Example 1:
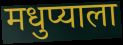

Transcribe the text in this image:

मधुप्याला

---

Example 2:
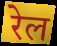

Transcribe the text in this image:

रेल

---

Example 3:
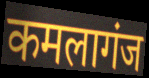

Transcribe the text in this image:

कमलागंज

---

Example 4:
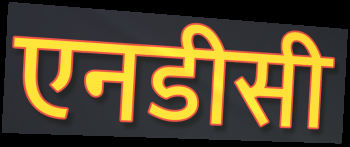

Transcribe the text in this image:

एनडीसी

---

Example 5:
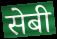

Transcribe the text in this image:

सेबी